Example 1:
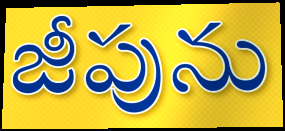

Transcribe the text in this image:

జీపును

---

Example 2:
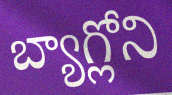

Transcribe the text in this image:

బ్యాగ్లోని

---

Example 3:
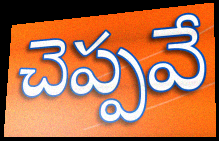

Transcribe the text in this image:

చెప్పవే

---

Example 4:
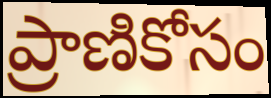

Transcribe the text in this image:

ప్రాణికోసం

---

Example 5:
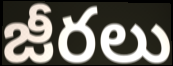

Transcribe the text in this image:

జీరలు